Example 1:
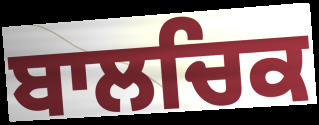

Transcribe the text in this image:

ਬਾਲਚਿਕ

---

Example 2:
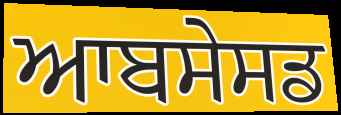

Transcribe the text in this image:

ਆਬਸੇਸਡ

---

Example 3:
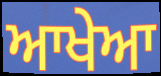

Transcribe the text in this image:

ਆਖੇਆ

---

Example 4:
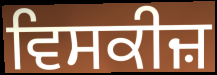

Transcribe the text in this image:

ਵਿਸਕੀਜ਼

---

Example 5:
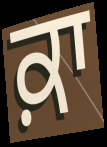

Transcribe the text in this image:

ਕ਼ਾ